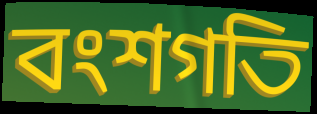
বংশগতি